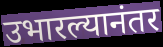
उभारल्यानंतर